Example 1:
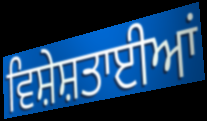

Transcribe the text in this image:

ਵਿਸ਼ੇਸ਼ਤਾਈਆਂ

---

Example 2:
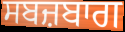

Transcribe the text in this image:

ਸਬਜ਼ਬਾਗ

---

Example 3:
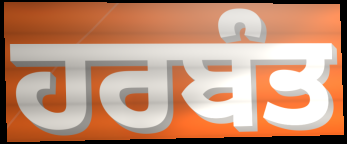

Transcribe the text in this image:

ਹਰਬੰਤ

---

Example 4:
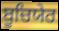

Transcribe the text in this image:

ਬੂਚਿਯੇਰ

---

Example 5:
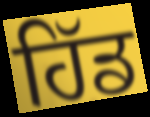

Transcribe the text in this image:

ਹਿੱਡ